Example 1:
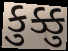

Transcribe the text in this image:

કુક્કુ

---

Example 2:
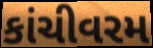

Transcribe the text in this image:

કાંચીવરમ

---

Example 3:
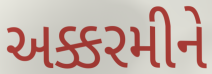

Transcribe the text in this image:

અક્કરમીને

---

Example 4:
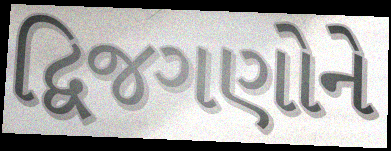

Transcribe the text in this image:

દ્વિજગણોને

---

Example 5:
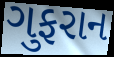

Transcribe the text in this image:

ગુફરાન